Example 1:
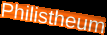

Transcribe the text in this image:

Philistheum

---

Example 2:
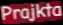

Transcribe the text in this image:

Prajkta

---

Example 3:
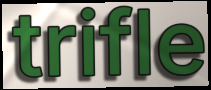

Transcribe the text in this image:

trifle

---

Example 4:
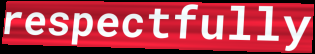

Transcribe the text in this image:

respectfully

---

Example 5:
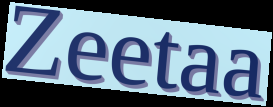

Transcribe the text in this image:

Zeetaa